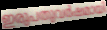
ഇരുപതുവർഷമായി